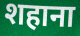
शहाना